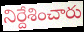
నిర్దేశించారు